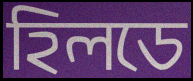
হিলডে